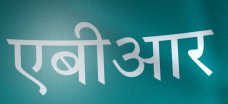
एबीआर